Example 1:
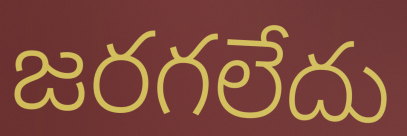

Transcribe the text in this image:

జరగలేదు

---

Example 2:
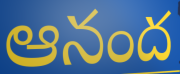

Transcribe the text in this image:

ఆనంద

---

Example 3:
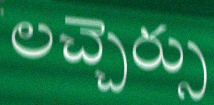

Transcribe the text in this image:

లచ్చెర్సు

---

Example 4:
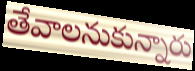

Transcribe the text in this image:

తేవాలనుకున్నారు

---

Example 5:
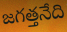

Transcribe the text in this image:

జగత్తనేది